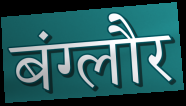
बंग्लौर